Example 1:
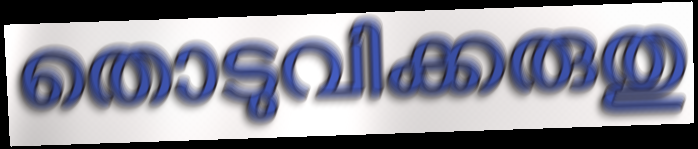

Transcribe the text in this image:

തൊടുവിക്കരുതു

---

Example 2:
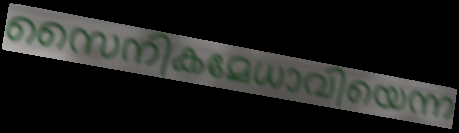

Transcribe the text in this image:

സൈനികമേധാവിയെന്ന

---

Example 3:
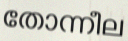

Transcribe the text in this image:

തോന്നീല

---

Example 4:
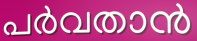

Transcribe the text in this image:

പർവതാൻ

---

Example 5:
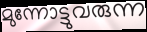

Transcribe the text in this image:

മുന്നോട്ടുവരുന്ന